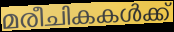
മരീചികകൾക്ക്